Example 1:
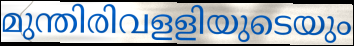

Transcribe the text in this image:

മുന്തിരിവളളിയുടെയും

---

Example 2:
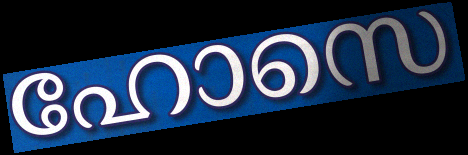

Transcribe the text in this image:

ഹോസെ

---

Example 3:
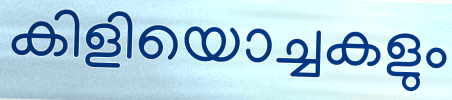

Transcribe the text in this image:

കിളിയൊച്ചകളും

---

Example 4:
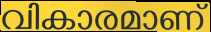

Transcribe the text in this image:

വികാരമാണ്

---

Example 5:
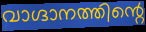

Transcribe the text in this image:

വാഗ്ദാനത്തിന്റെ